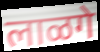
लाळगे